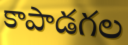
కాపాడగల